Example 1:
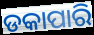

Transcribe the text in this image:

ଡକାପାରି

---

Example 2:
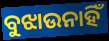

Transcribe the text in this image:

ବୁଝାଉନାହିଁ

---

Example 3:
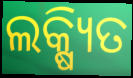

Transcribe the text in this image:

ଲକ୍ଷ୍ୟିତ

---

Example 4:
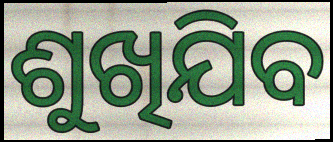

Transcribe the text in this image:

ଶୁଖିଯିବ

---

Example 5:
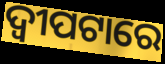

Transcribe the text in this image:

ଦ୍ୱୀପଟାରେ